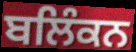
ਬਲਿੰਕਨ